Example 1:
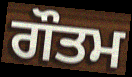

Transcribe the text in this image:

ਗੌਤਮ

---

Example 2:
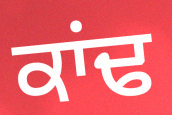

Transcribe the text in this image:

ਕਾਂਢ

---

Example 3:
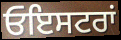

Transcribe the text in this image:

ਓਇਸਟਰਾਂ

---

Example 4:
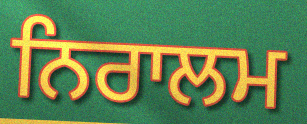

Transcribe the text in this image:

ਨਿਰਾਲਮ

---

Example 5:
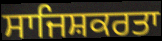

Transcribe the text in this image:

ਸਾਜਿਸ਼ਕਰਤਾ